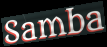
Samba